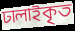
ঢালাইকৃত